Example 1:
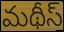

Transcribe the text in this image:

మథీస్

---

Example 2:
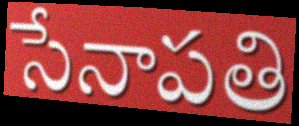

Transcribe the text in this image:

సేనాపతి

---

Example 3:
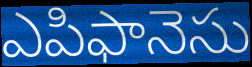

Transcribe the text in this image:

ఎపిఫానెసు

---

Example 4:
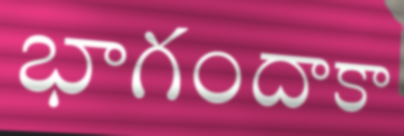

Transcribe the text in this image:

భాగందాకా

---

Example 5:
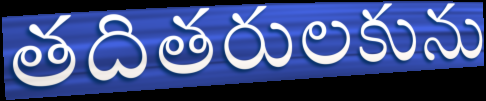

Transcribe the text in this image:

తదితరులకును